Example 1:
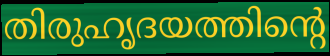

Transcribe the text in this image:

തിരുഹൃദയത്തിന്റെ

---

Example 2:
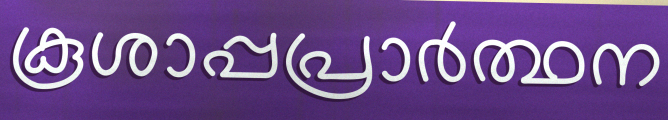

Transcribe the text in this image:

കൂശാപ്പപ്രാർത്ഥന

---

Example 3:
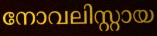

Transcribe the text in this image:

നോവലിസ്റ്റായ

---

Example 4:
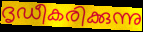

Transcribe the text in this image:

ദൃഡീകരിക്കുന്നു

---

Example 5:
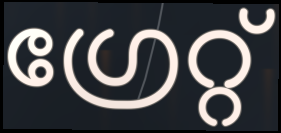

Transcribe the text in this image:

ഗ്രേറ്റ്